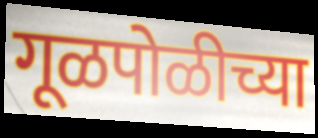
गूळपोळीच्या